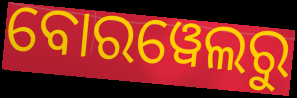
ବୋରୱେଲରୁ